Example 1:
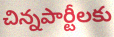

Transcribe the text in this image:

చిన్నపార్టీలకు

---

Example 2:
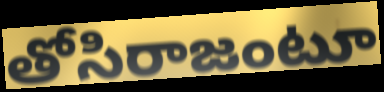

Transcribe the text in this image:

తోసిరాజంటూ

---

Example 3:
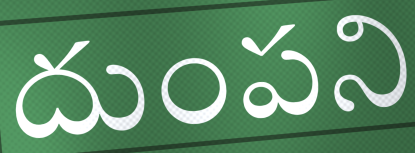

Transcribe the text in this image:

దుంపని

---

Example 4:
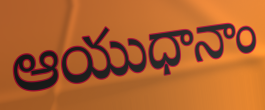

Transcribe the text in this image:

ఆయుధానాం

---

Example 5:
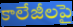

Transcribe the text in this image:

కాలేజీలపై